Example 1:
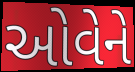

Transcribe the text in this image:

ઓવેને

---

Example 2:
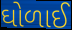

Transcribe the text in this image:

ઘોળાઈ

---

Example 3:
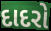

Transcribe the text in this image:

દાદરો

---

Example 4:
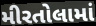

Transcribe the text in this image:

મીરતોલામાં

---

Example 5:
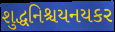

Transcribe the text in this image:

શુદ્ધનિશ્ચયનયકર